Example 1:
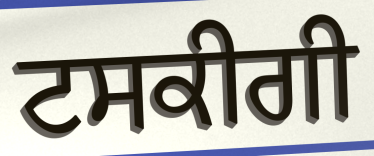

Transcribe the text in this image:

ਟਸਕੀਗੀ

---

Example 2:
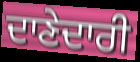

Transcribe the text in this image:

ਦਾਣੇਦਾਰੀ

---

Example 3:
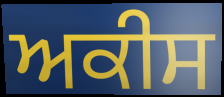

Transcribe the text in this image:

ਅਕੀਸ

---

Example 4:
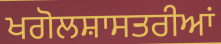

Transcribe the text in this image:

ਖਗੋਲਸ਼ਾਸਤਰੀਆਂ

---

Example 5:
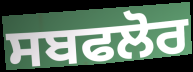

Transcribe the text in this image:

ਸਬਫਲੋਰ